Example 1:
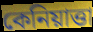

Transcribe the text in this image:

কেনিয়াত্তা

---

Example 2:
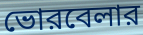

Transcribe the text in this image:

ভোরবেলার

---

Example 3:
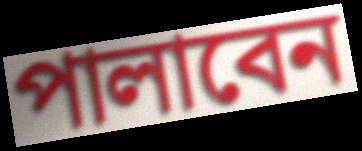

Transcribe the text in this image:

পালাবেন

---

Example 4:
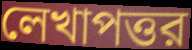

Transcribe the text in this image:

লেখাপত্তর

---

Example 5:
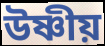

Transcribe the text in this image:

উষ্ণীয়